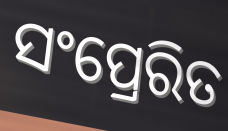
ସଂପ୍ରେରିତ